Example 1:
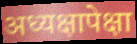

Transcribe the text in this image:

अध्यक्षापेक्षा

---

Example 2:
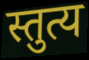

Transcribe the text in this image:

स्तुत्य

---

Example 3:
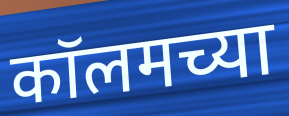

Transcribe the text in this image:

कॉलमच्या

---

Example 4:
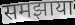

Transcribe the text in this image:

समझाया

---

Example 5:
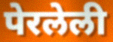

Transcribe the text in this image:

पेरलेली